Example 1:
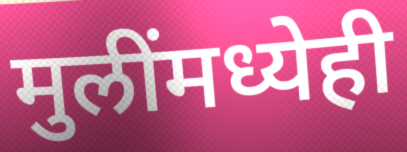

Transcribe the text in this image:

मुलींमध्येही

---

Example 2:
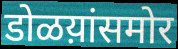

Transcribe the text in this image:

डोळय़ांसमोर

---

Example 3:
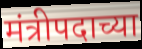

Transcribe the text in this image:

मंत्रीपदाच्या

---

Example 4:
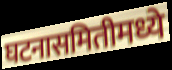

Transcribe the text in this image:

घटनासमितीमध्ये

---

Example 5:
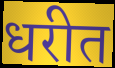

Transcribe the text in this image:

धरीत